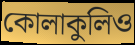
কোলাকুলিও